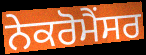
ਨੇਕਰੋਮੈਂਸਰ